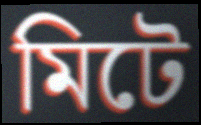
মিটে